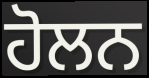
ਹੋਲਨ